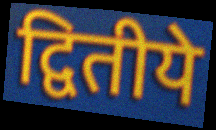
द्वितीये